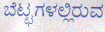
ಬೆಟ್ಟಗಳಲ್ಲಿರುವ